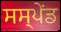
ਸਸ੍ਪੇੰਡ